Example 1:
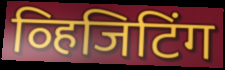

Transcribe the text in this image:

व्हिजिटिंग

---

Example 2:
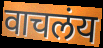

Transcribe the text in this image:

वाचलंय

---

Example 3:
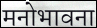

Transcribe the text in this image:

मनोभावना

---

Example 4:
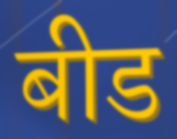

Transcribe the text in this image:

बीड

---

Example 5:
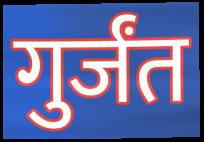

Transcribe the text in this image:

गुर्जंत